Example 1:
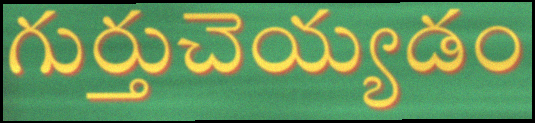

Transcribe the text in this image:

గుర్తుచెయ్యడం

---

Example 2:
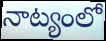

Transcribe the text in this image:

నాట్యంలో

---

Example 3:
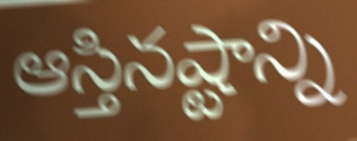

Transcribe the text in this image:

ఆస్తినష్టాన్ని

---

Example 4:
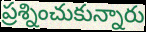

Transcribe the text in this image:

ప్రశ్నించుకున్నారు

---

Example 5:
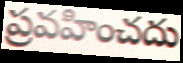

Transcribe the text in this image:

ప్రవహించదు